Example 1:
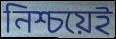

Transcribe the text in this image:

নিশ্চয়েই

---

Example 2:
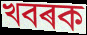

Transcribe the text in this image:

খবৰক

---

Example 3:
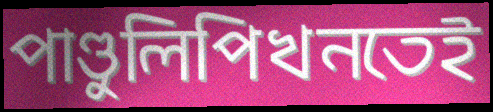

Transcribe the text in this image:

পাণ্ডুলিপিখনতেই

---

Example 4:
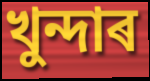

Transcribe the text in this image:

খুন্দাৰ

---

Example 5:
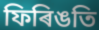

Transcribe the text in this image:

ফিৰিঙতি